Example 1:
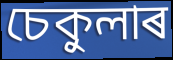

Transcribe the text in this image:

চেকুলাৰ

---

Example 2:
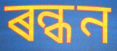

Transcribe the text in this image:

ৰন্ধন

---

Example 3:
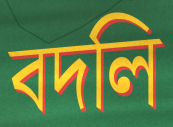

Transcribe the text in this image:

বদলি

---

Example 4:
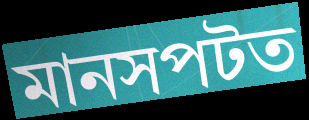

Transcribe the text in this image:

মানসপটত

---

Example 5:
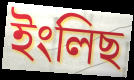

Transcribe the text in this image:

ইংলিছ